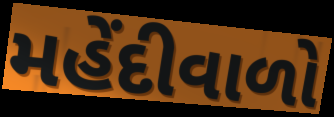
મહેંદીવાળો